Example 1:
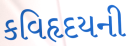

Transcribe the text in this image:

કવિહૃદયની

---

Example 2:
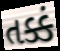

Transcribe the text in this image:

તક્કં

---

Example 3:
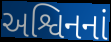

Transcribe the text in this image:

અશ્વિનનાં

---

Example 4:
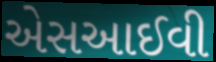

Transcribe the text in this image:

એસઆઈવી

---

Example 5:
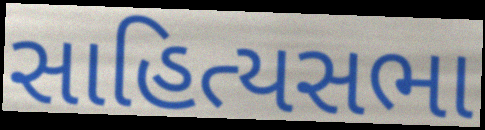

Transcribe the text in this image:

સાહિત્યસભા